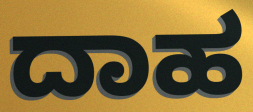
ದಾಹ